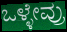
ಒಳ್ಳೇವ್ರು